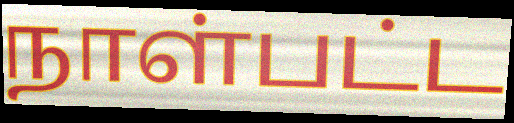
நாள்பட்ட